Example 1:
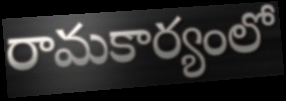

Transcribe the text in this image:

రామకార్యంలో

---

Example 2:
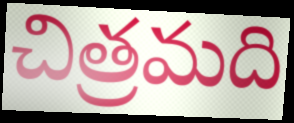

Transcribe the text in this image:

చిత్రమది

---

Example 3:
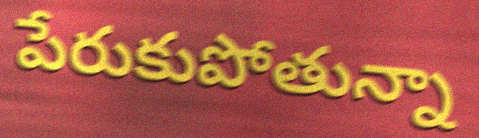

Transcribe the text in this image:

పేరుకుపోతున్నా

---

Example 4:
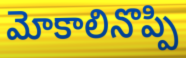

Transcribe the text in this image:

మోకాలినొప్పి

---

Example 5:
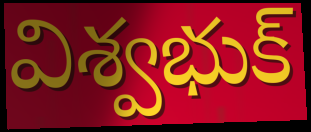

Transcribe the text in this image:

విశ్వభుక్